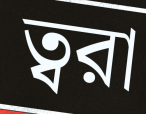
ত্বরা